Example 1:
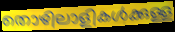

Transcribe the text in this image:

തൊഴിലാളികൾക്കുള്ള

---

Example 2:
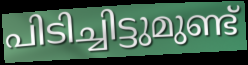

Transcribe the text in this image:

പിടിച്ചിട്ടുമുണ്ട്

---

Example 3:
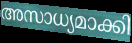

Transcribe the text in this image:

അസാധ്യമാക്കി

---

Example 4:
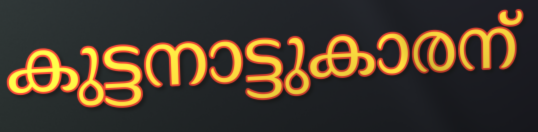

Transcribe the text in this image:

കുട്ടനാട്ടുകാരന്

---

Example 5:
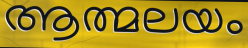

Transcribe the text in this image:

ആത്മലയം